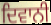
ਦਿਵਾਨੀ